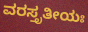
ವರಸ್ತೃತೀಯಃ